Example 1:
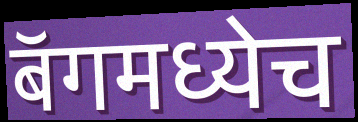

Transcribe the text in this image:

बॅगमध्येच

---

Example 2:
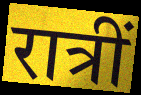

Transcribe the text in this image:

रात्रीं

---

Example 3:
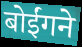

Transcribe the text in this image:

बोईंगने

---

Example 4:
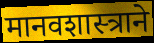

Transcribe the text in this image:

मानवशास्त्राने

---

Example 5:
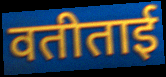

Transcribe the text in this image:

वतीताई